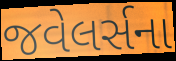
જવેલર્સના